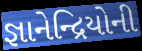
જ્ઞાનેન્દ્રિયોની